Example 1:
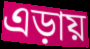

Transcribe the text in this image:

এড়ায়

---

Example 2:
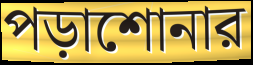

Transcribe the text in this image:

পড়াশোনার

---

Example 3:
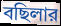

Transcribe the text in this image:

বছিলার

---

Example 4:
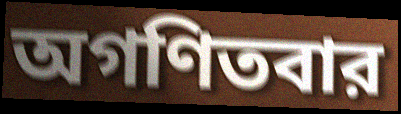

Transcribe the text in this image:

অগণিতবার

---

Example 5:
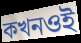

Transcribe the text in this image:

কখনওই